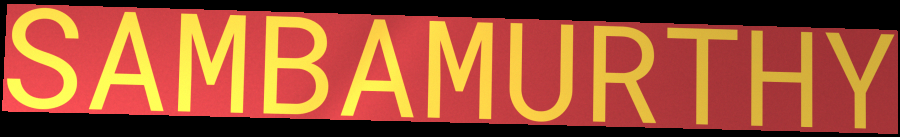
SAMBAMURTHY